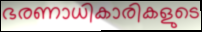
ഭരണാധികാരികളുടെ